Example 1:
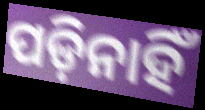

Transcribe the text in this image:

ପଡ଼ିନାହିଁ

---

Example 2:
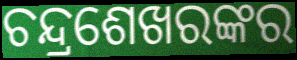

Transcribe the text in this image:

ଚନ୍ଦ୍ରଶେଖରଙ୍କର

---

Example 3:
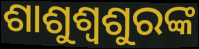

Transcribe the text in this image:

ଶାଶୁଶ୍ୱଶୁରଙ୍କ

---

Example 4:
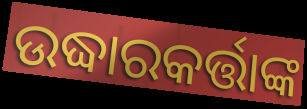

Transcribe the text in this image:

ଉଦ୍ଧାରକର୍ତ୍ତାଙ୍କ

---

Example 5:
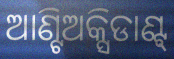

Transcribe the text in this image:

ଆଣ୍ଟିଅକ୍ସିଡାଣ୍ଟ୍